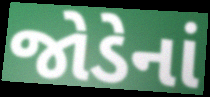
જોડેનાં